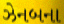
ઝેનબના